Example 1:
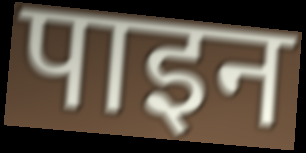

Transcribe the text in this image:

पाइन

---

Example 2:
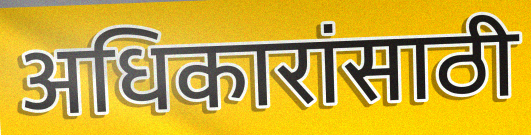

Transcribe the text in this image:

अधिकारांसाठी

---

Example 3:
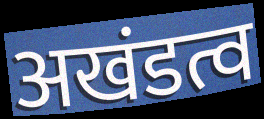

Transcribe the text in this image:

अखंडत्व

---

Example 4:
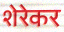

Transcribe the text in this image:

शेरेकर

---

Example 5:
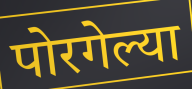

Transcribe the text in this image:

पोरगेल्या